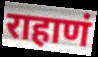
राहाणं